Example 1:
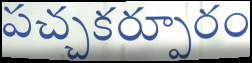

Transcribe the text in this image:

పచ్చకర్పూరం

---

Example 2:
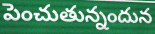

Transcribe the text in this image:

పెంచుతున్నందున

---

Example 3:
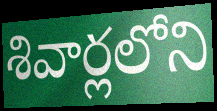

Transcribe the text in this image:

శివార్లలోని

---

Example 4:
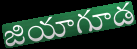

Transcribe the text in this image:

జియాగూడ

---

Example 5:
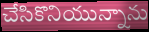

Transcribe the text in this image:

చేసికొనియున్నాను